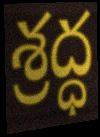
శ్రద్ధ